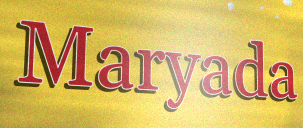
Maryada